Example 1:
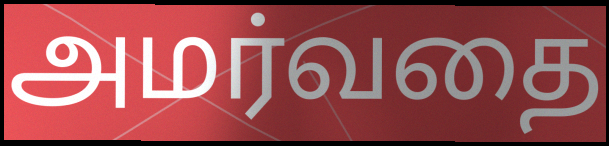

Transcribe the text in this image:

அமர்வதை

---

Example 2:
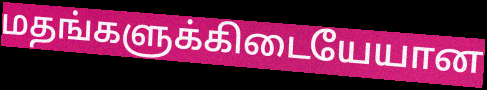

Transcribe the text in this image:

மதங்களுக்கிடையேயான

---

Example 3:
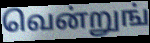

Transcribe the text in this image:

வென்றுங்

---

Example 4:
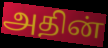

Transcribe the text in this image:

அதின்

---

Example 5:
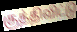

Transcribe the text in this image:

குத்திவிட்டு